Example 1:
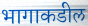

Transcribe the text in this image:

भागाकडील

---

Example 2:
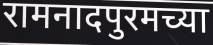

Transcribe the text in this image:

रामनादपुरमच्या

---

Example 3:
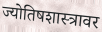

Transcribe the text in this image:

ज्योतिषशास्त्रावर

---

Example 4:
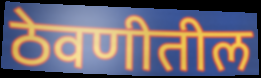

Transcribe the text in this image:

ठेवणीतील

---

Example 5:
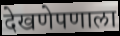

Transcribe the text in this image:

देखणेपणाला